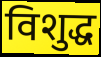
विशुद्ध